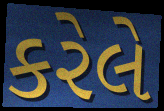
કરેલે